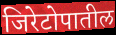
जिरेटोपातील